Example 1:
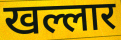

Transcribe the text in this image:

खल्लार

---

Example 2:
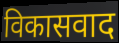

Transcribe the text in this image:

विकासवाद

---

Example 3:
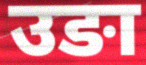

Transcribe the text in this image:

उङा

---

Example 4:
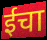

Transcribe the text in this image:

ईचा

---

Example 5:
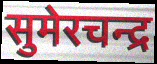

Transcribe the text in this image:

सुमेरचन्द्र